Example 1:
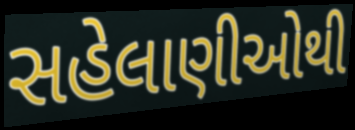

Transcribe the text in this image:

સહેલાણીઓથી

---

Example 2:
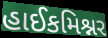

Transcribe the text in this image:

હાઈકમિશ્નર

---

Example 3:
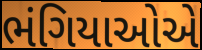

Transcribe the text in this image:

ભંગિયાઓએ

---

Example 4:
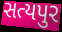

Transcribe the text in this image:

સત્યપુર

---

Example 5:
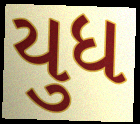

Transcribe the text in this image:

યુધ